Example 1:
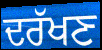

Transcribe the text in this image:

ਦਰੱਖਣ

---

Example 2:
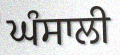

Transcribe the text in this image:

ਘੰਸਾਲੀ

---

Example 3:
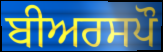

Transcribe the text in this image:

ਬੀਅਰਸਪੌ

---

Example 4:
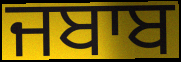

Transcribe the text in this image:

ਜਬਾਬ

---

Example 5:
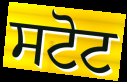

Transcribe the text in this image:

ਸਟੋਟ